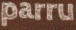
parru